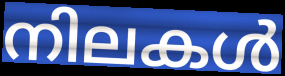
നിലകൾ